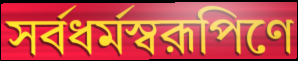
সর্বধর্মস্বরূপিণে